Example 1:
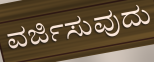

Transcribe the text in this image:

ವರ್ಜಿಸುವುದು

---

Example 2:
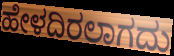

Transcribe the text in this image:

ಹೇಳದಿರಲಾಗದು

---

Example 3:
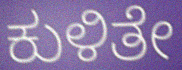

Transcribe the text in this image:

ಕುಳಿತೇ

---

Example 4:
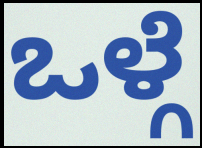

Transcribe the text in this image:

ಒಳ್ಗೆ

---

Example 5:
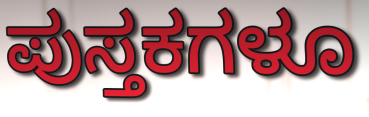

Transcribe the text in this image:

ಪುಸ್ತಕಗಳೂ